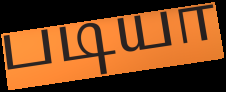
படியா